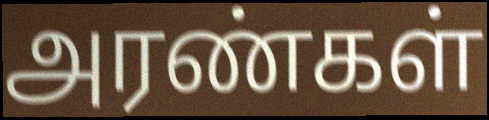
அரண்கள்